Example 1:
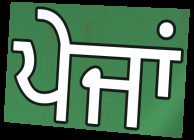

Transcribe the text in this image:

ਪੇਜਾਂ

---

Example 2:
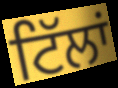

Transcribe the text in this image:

ਟਿੱਲਾਂ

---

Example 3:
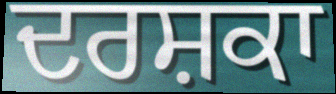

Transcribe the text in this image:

ਦਰਸ਼ਕਾ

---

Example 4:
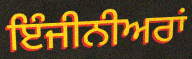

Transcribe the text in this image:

ਇੰਜੀਨੀਅਰਾਂ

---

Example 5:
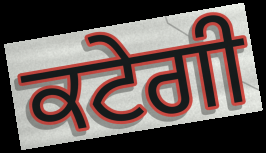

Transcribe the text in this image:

ਕਟੇਗੀ